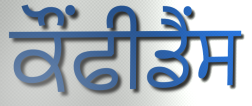
ਕੌਂਫੀਡੈਂਸ